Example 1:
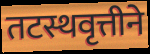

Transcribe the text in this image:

तटस्थवृत्तीने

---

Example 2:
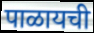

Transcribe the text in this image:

पाळायची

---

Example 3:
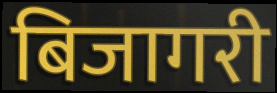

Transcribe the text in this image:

बिजागरी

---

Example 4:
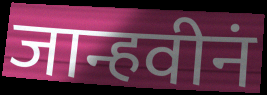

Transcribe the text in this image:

जान्हवीनं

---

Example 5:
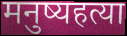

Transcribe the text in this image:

मनुष्यहत्या